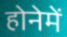
होनेमें